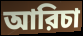
আরিচা